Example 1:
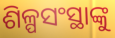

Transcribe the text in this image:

ଶିଳ୍ପସଂସ୍ଥାଙ୍କୁ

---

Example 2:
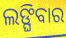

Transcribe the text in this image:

ଲଙ୍ଘିବାର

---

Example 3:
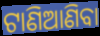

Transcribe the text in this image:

ଟାଣିଆଣିବା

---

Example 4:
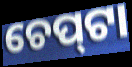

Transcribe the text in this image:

ଚେପ୍‌ଟା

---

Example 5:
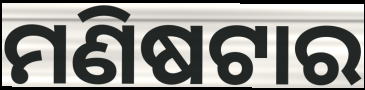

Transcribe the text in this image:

ମଣିଷଟାର